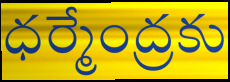
ధర్మేంద్రకు